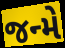
જન્મે